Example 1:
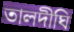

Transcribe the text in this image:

তালদীঘি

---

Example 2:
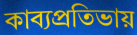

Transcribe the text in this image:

কাব্যপ্রতিভায়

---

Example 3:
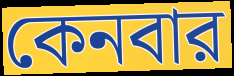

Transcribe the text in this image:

কেনবার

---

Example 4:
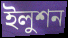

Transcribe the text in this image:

ইলুশন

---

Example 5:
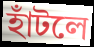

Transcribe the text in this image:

হাঁটলে